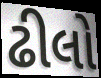
ઢીલો